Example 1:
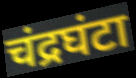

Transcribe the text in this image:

चंद्रघंटा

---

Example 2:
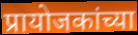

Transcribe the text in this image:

प्रायोजकांच्या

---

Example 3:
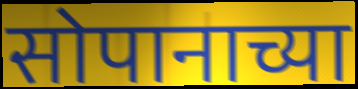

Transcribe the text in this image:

सोपानाच्या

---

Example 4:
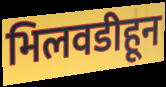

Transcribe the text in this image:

भिलवडीहून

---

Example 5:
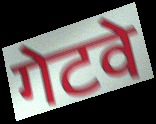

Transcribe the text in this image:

गेटवे